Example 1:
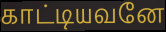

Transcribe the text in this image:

காட்டியவனே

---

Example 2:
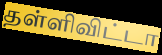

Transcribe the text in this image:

தள்ளிவிட்டா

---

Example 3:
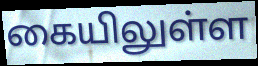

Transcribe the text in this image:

கையிலுள்ள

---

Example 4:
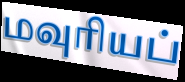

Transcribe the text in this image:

மவுரியப்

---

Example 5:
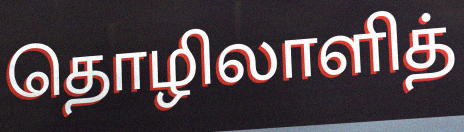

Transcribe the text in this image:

தொழிலாளித்